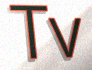
Tv